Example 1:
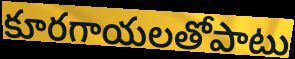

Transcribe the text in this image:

కూరగాయలతోపాటు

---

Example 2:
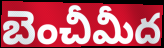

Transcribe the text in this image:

బెంచీమీద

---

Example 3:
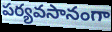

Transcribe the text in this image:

పర్యవసానంగా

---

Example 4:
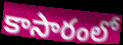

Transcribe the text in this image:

కాసారంలో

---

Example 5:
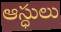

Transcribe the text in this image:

ఆస్ధులు